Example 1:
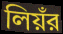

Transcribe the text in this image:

লিয়ঁর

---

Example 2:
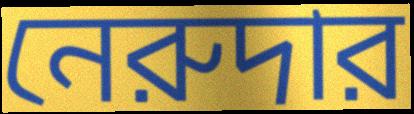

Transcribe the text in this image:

নেরুদার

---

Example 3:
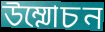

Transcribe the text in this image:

উম্মোচন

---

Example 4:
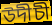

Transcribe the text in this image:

উদীচী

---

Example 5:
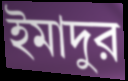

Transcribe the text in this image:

ইমাদুর